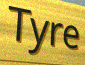
Tyre